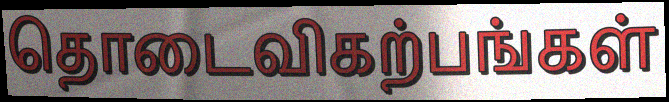
தொடைவிகற்பங்கள்